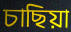
চাছিয়া